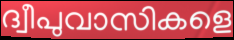
ദ്വീപുവാസികളെ